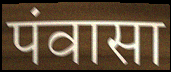
पंवासा